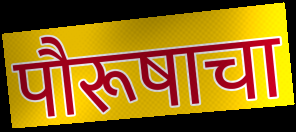
पौरूषाचा